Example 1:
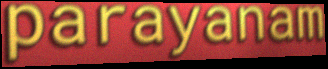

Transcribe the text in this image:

parayanam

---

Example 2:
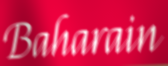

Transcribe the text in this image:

Baharain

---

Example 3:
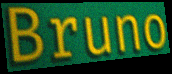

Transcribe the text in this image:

Bruno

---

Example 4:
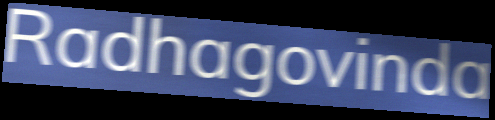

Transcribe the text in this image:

Radhagovinda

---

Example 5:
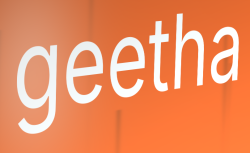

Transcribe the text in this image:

geetha